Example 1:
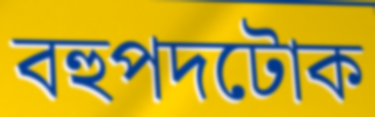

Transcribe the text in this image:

বহুপদটোক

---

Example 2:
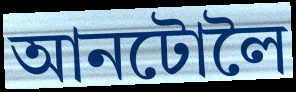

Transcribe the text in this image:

আনটোলৈ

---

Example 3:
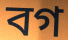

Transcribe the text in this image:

বগ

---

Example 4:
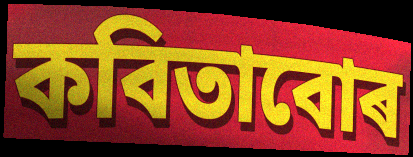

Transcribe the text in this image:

কবিতাবোৰ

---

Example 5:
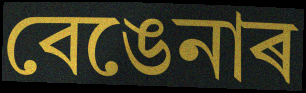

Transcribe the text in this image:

বেঙেনাৰ